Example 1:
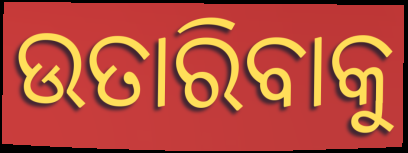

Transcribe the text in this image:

ଉତାରିବାକୁ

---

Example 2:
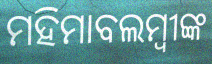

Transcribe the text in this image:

ମହିମାବଲମ୍ବୀଙ୍କ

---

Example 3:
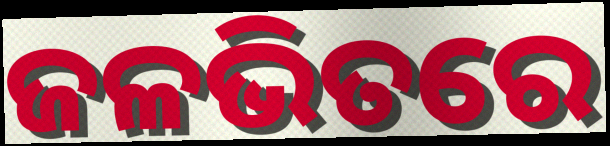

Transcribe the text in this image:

ଜଳଭିତରେ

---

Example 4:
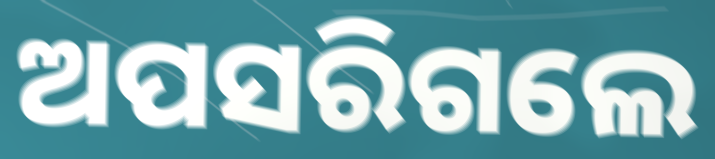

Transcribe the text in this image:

ଅପସରିଗଲେ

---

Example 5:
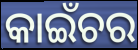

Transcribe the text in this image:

କାଇଁଚର